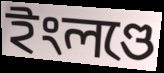
ইংলণ্ডে